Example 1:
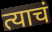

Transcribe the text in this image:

त्याचं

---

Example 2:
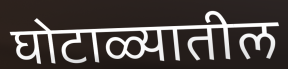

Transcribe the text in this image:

घोटाळ्यातील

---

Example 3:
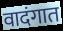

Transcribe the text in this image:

वादंगात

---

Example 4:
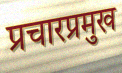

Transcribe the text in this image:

प्रचारप्रमुख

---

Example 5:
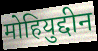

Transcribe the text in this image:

मोहियुद्दीन